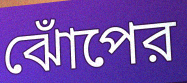
ঝোঁপের